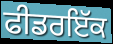
ਫੀਡਰਇੱਕ